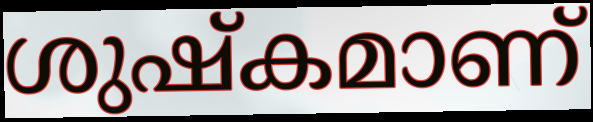
ശുഷ്കമാണ്